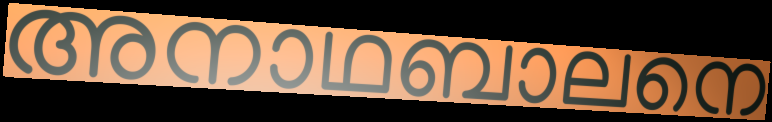
അനാഥബാലനെ